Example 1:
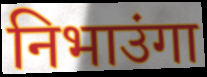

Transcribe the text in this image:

निभाउंगा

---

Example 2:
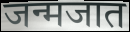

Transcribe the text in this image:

जन्मजात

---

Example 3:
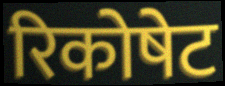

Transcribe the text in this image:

रिकोषेट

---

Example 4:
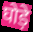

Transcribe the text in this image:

घोड़े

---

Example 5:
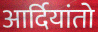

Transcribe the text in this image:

आर्दियांतो